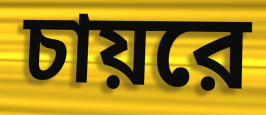
চায়রে